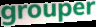
grouper